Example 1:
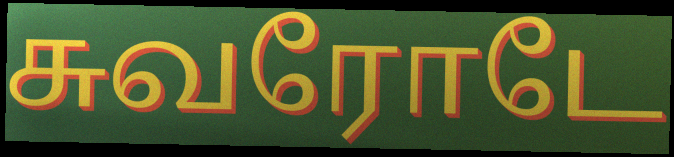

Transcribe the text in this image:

சுவரோடே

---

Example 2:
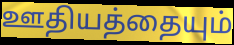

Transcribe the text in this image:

ஊதியத்தையும்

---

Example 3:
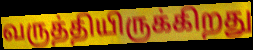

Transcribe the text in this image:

வருத்தியிருக்கிறது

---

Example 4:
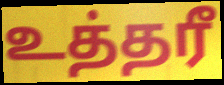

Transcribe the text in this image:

உத்தரீ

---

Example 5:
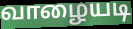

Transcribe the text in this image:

வாழையடி